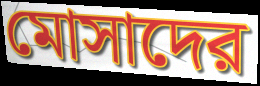
মোসাদের